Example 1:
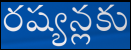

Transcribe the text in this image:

రష్యన్లకు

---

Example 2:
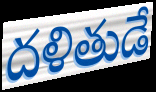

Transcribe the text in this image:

దళితుడే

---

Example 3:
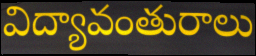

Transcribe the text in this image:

విద్యావంతురాలు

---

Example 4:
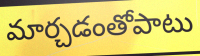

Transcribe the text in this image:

మార్చడంతోపాటు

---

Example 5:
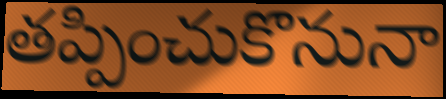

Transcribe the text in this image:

తప్పించుకొనునా